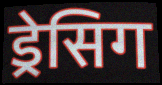
ड्रेसिग